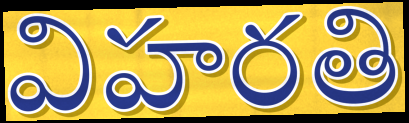
విహరతి